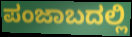
ಪಂಜಾಬದಲ್ಲಿ